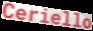
Ceriello